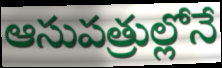
ఆసుపత్రుల్లోనే